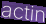
actin